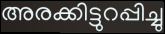
അരക്കിട്ടുറപ്പിച്ചു